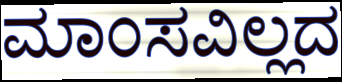
ಮಾಂಸವಿಲ್ಲದ